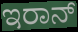
ಇರಾನ್